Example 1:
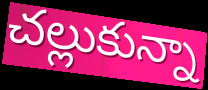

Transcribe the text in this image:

చల్లుకున్నా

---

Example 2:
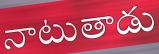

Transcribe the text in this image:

నాటుతాడు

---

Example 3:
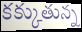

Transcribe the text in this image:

కక్కుతున్న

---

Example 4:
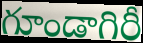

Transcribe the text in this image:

గూండాగిరీ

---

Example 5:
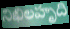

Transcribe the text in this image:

నిఖిలహృది